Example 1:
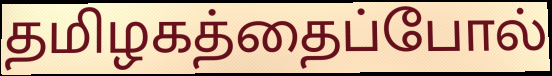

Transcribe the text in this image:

தமிழகத்தைப்போல்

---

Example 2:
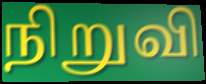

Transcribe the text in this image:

நிறுவி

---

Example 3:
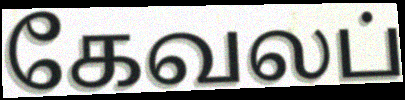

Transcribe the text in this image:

கேவலப்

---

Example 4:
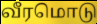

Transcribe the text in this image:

வீரமொடு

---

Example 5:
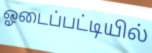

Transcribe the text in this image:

ஓடைப்பட்டியில்